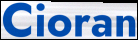
Cioran